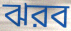
ঝরব